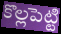
కొల్లపెట్టి